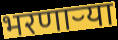
भरणाऱ्या